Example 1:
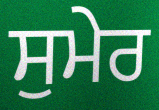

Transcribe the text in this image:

ਸੁਮੇਰ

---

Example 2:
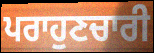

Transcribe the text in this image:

ਪਰਾਹੁਣਚਾਰੀ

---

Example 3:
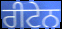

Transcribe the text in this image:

ਰੀਟੇਨ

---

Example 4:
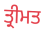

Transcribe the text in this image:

ਤ੍ਰੀਮਤ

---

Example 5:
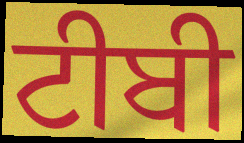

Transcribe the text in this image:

ਟੀਬੀ